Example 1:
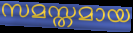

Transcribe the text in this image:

സമസ്തമായ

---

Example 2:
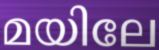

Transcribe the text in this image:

മയിലേ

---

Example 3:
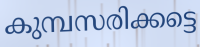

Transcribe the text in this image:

കുമ്പസരിക്കട്ടെ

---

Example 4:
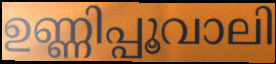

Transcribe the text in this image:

ഉണ്ണിപ്പൂവാലി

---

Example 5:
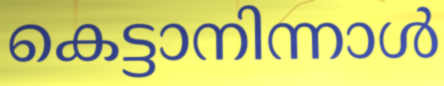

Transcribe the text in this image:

കെട്ടാനിന്നാൾ